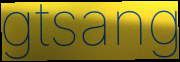
gtsang